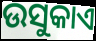
ଉସୁକାଏ